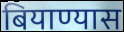
बियाण्यास